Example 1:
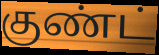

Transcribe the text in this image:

குண்ட்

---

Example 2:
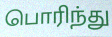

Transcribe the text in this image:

பொரிந்து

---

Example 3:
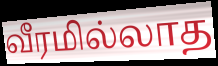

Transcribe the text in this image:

வீரமில்லாத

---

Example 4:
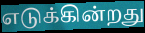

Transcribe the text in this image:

எடுக்கின்றது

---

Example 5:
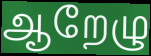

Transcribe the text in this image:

ஆறேழு